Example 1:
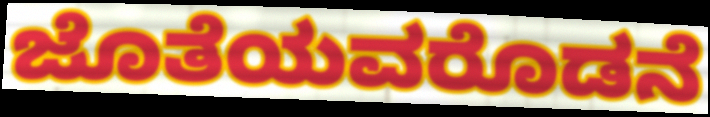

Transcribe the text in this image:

ಜೊತೆಯವರೊಡನೆ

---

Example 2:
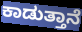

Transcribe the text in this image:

ಕಾಡುತ್ತಾನೆ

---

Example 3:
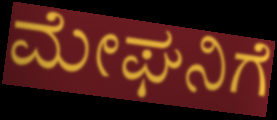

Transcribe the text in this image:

ಮೇಘನಿಗೆ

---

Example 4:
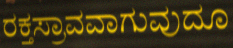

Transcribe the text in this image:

ರಕ್ತಸ್ರಾವವಾಗುವುದೂ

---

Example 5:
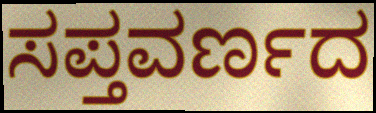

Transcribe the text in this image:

ಸಪ್ತವರ್ಣದ